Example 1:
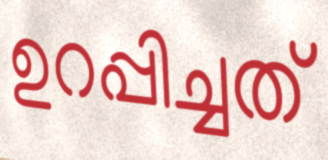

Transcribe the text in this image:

ഉറപ്പിച്ചത്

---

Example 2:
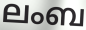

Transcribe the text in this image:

ലംബ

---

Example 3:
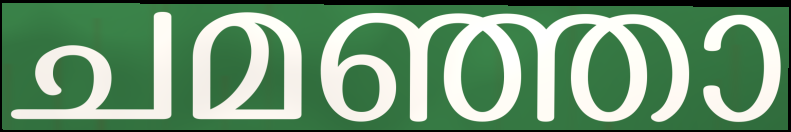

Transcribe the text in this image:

ചമഞ്ഞാ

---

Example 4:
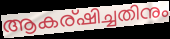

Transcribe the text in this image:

ആകര്ഷിച്ചതിനും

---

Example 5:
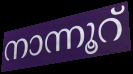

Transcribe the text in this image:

നാന്നൂറ്